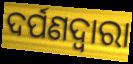
ଦର୍ପଣଦ୍ୱାରା